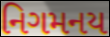
નિગમનય